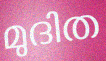
മുദിത